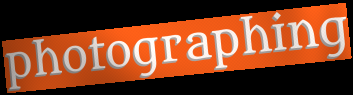
photographing